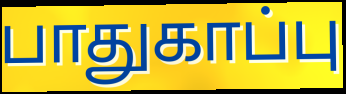
பாதுகாப்பு